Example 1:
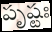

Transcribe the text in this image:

పృష్టః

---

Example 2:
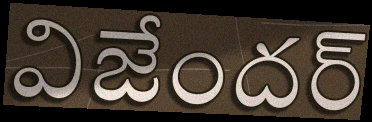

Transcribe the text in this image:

విజేందర్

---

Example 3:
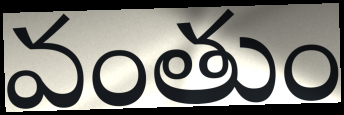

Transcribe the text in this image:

వంతుం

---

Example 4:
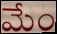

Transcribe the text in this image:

మేం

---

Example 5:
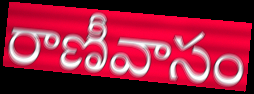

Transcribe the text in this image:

రాణీవాసం